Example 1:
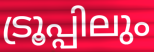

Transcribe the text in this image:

ട്രൂപ്പിലും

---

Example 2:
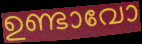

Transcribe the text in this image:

ഉണ്ടാവോ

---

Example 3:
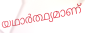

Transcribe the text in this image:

യഥാർത്ഥ്യമാണ്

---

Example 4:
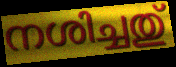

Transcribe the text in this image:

നശിച്ചതു്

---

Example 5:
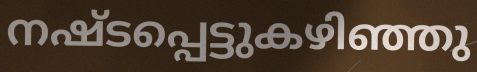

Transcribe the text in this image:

നഷ്ടപ്പെട്ടുകഴിഞ്ഞു